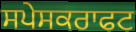
ਸਪੇਸਕਰਾਫਟ